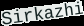
Sirkazhi